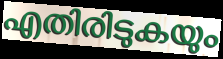
എതിരിടുകയും